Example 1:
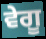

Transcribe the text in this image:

ਵੇਗੂ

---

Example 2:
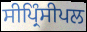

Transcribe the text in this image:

ਸੀਪ੍ਰਿੰਸੀਪਲ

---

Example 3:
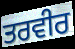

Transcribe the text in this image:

ਤਰਵੀਰ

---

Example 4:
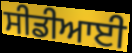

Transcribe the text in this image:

ਸੀਡੀਆਈ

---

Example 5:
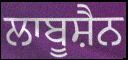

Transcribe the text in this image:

ਲਾਬੂਸ਼ੈਨ